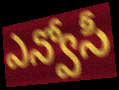
ఎన్వోసీ